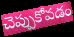
చెప్పుకోవడం